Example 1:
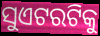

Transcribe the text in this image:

ସୁଏଟରଟିକୁ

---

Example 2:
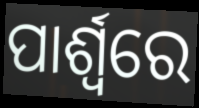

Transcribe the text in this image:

ପାର୍ଶ୍ଵରେ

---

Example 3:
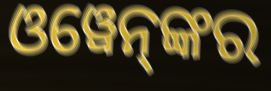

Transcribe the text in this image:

ଓୱେନ୍‌ଙ୍କର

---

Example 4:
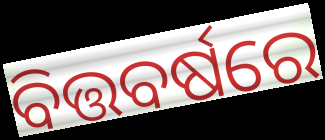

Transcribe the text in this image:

ବିତ୍ତବର୍ଷରେ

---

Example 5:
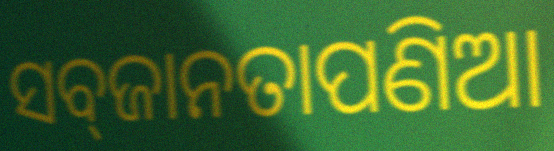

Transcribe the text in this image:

ସବ୍‌ଜାନତାପଣିଆ